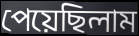
পেয়েছিলাম